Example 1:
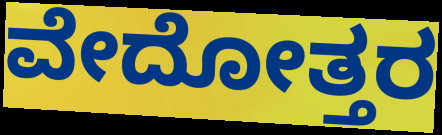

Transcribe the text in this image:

ವೇದೋತ್ತರ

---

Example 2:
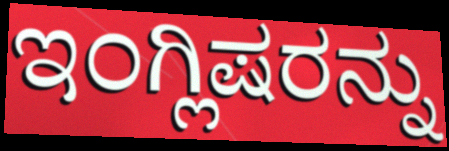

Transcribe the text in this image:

ಇಂಗ್ಲಿಷರನ್ನು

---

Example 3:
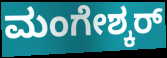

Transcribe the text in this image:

ಮಂಗೇಶ್ಕರ್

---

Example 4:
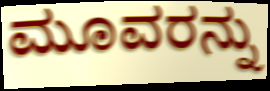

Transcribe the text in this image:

ಮೂವರನ್ನು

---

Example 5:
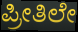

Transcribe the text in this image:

ಪ್ರೀತಿಲೇ